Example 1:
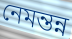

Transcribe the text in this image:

নেমন্তন্ন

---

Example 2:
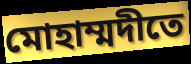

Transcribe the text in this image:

মোহাম্মদীতে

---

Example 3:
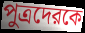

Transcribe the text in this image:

পুত্রদেরকে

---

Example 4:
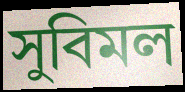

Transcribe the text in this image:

সুবিমল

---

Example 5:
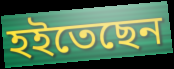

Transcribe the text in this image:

হইতেছেন